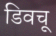
डिवचू